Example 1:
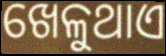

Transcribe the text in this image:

ଖେଳୁଥାଏ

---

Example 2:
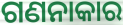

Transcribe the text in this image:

ଗଣନାକାର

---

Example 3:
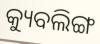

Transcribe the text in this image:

କ୍ୟୁବଲିଙ୍ଗ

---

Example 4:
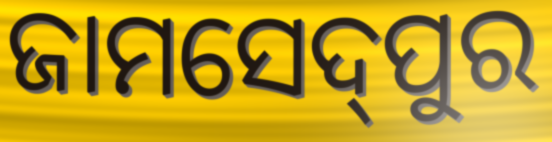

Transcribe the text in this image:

ଜାମସେଦ୍‌ପୁର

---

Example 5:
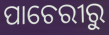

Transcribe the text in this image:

ପାଚେରୀରୁ